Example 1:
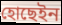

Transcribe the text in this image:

হোছেইন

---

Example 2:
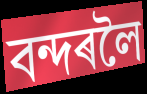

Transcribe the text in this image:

বন্দৰলৈ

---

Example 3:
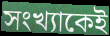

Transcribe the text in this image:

সংখ্যাকেই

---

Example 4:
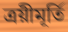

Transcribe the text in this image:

ত্ৰয়ীমূৰ্তি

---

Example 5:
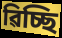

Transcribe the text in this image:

ৱিচ্ছি